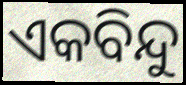
ଏକବିନ୍ଦୁ